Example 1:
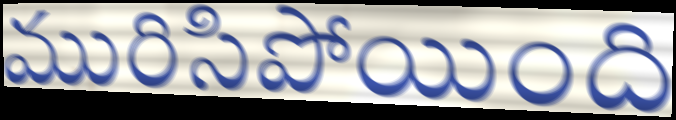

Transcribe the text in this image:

మురిసిపోయింది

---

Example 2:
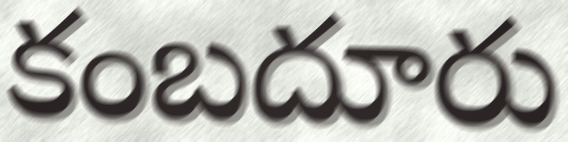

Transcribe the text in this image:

కంబదూరు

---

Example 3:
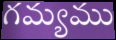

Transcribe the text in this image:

గమ్యము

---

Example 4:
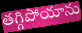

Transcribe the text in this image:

తగ్గిపోయాను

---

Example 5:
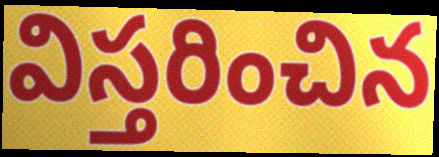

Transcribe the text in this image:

విస్తరించిన